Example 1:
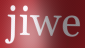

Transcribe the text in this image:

jiwe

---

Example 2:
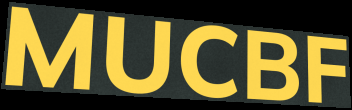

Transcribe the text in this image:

MUCBF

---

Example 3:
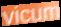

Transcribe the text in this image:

vicum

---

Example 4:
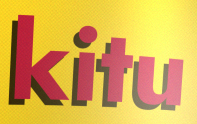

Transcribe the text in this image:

kitu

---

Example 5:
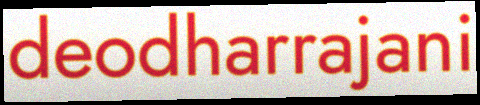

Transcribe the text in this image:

deodharrajani